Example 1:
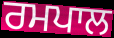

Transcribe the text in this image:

ਰਮਪਾਲ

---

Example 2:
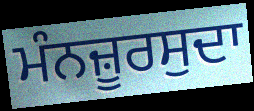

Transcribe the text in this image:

ਮੰਨਜ਼ੂਰਸੁਦਾ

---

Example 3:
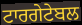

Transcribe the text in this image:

ਟਾਰਗੇਟੇਬਲ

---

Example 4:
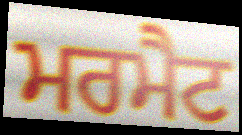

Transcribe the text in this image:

ਮਰਮੈਟ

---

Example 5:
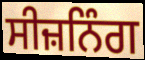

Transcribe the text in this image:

ਸੀਜ਼ਨਿੰਗ